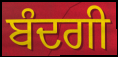
ਬੰਦਗੀ